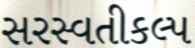
સરસ્વતીકલ્પ